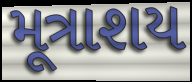
મૂત્રાશય